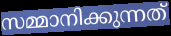
സമ്മാനിക്കുന്നത്